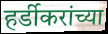
हर्डीकरांच्या